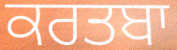
ਕਰਤਬਾ